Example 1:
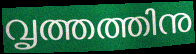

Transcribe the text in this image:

വൃത്തത്തിനു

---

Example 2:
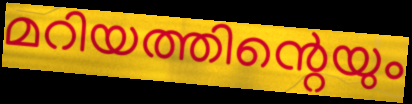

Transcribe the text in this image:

മറിയത്തിന്റെയും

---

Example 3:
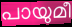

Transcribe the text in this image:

പായുമീ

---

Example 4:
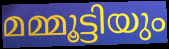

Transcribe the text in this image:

മമ്മൂട്ടിയും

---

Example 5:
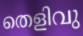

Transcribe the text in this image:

തെളിവു